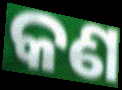
କଣ